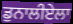
ਡੁਨਾਲੀਏਲਾ